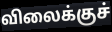
விலைக்குச்